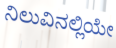
ನಿಲುವಿನಲ್ಲಿಯೇ